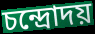
চন্দ্রোদয়